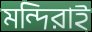
মন্দিরাই